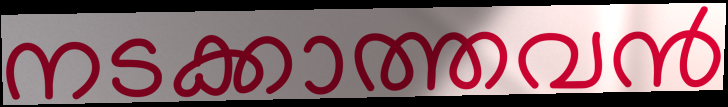
നടക്കാത്തവൻ